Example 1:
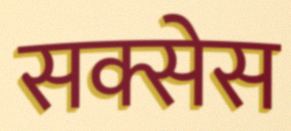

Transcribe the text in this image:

सक्सेस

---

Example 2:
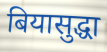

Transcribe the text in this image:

बियासुद्धा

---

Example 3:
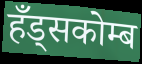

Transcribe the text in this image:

हँड्सकोम्ब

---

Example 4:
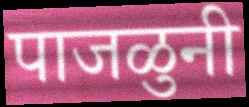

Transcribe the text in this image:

पाजळुनी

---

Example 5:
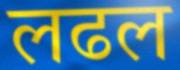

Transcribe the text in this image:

लढल